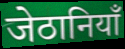
जेठानियाँ